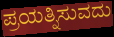
ಪ್ರಯತ್ನಿಸುವದು